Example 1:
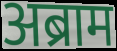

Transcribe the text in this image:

अब्राम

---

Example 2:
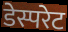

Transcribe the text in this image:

डेस्परेट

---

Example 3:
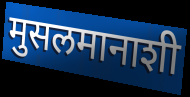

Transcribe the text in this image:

मुसलमानाशी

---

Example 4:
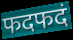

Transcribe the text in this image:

फदफदं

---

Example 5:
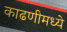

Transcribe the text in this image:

काढणीमध्ये